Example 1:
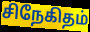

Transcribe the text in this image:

சிநேகிதம்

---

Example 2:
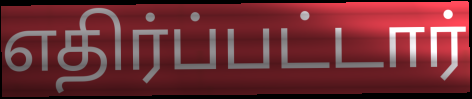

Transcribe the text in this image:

எதிர்ப்பட்டார்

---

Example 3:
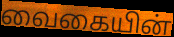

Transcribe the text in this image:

வைகையின்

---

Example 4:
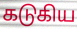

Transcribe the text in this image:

கடுகிய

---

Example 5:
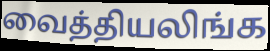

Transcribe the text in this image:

வைத்தியலிங்க